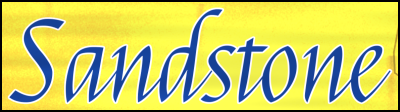
Sandstone